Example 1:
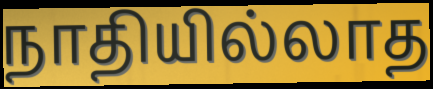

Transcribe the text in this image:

நாதியில்லாத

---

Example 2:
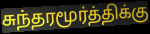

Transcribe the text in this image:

சுந்தரமூர்த்திக்கு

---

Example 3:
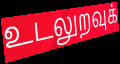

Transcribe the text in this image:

உடலுறவுக்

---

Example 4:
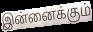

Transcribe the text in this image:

இன்னைக்கும்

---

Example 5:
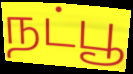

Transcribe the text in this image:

நட்பூ